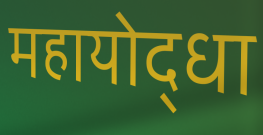
महायोद्धा